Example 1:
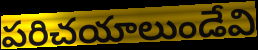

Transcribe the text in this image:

పరిచయాలుండేవి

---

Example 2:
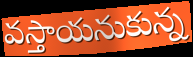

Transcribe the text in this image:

వస్తాయనుకున్న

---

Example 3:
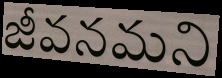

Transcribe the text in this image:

జీవనమని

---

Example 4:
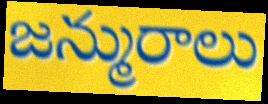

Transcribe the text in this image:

జన్మురాలు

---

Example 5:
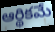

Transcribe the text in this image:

ఆర్థికమే